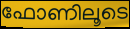
ഫോണിലൂടെ